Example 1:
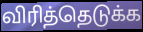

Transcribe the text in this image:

விரித்தெடுக்க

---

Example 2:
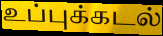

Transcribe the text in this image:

உப்புக்கடல்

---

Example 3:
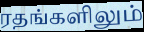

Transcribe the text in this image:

ரதங்களிலும்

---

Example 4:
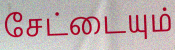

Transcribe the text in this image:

சேட்டையும்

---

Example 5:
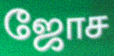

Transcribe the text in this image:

ஜோச